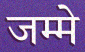
जम्मे